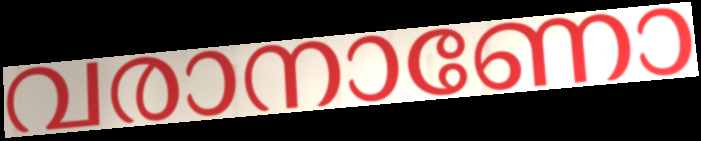
വരാനാണോ